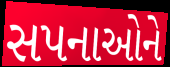
સપનાઓને